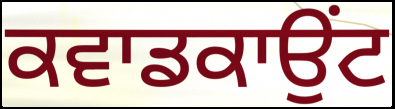
ਕਵਾਡਕਾਉਂਟ